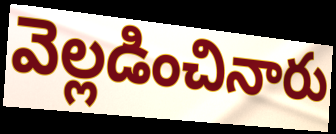
వెల్లడించినారు